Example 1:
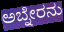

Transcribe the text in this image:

ಅಬ್ನೇರನು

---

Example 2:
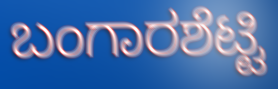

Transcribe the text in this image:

ಬಂಗಾರಶೆಟ್ಟಿ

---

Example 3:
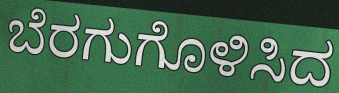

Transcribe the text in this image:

ಬೆರಗುಗೊಳಿಸಿದ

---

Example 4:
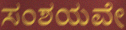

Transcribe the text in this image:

ಸಂಶಯವೇ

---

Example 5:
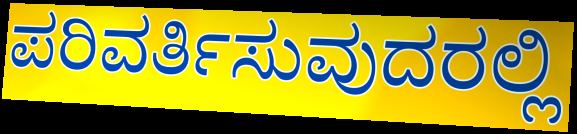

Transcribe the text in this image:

ಪರಿವರ್ತಿಸುವುದರಲ್ಲಿ